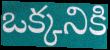
ఒక్కనికి